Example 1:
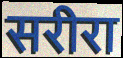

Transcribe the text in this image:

सरीरा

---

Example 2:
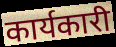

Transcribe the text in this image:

कार्यकारी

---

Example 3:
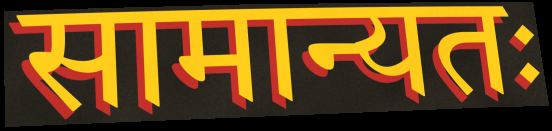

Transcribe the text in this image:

सामान्यतः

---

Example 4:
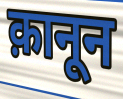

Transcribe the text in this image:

क़ानून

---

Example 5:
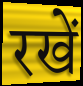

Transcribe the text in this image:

रखें